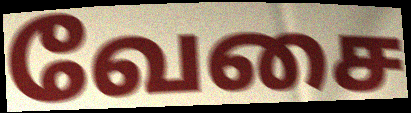
வேசை